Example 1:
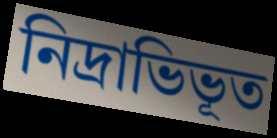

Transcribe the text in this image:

নিদ্রাভিভূত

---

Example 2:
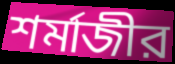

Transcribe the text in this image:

শর্মাজীর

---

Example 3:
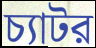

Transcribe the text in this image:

চ্যাটর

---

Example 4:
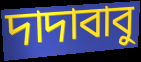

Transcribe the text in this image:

দাদাবাবু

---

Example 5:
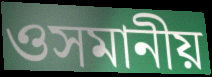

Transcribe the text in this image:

ওসমানীয়